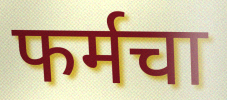
फर्मचा